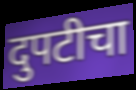
दुपटीचा